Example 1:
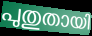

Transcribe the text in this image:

പുതുതായി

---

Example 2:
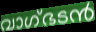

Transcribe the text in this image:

വാഗ്ഭടൻ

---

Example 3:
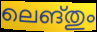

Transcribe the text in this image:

ലെങ്തും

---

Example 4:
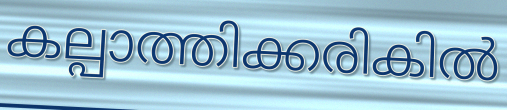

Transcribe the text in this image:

കല്പാത്തിക്കരികിൽ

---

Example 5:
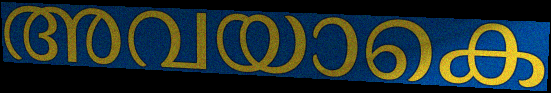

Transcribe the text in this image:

അവയാകെ